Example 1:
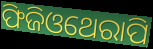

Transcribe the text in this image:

ଫିଜିଓଥେରାପି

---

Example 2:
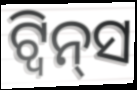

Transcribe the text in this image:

ଟ୍ବିନ୍‌ସ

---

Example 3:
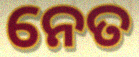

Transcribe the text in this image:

ନେତ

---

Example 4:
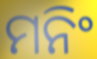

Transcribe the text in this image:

ମନିଂ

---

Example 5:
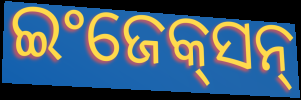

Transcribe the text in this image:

ଇଂଜେକ୍‌ସନ୍